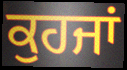
ਕੁਹਜਾਂ